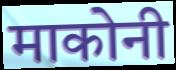
माकोनी